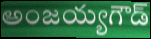
అంజయ్యగౌడ్